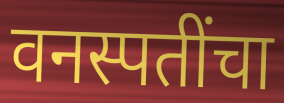
वनस्पतींचा